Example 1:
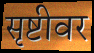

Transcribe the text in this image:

सृष्टीवर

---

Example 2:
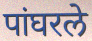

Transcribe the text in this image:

पांघरले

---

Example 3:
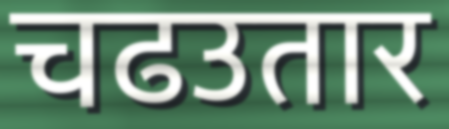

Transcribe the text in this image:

चढउतार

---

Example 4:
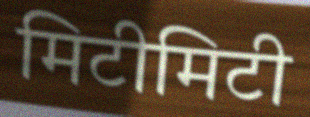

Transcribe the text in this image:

मिटीमिटी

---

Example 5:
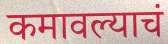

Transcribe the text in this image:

कमावल्याचं